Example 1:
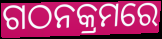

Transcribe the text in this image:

ଗଠନକ୍ରମରେ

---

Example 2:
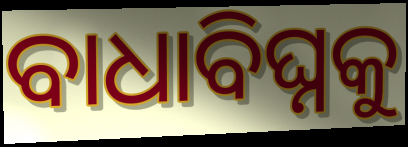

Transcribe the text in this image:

ବାଧାବିଘ୍ନକୁ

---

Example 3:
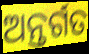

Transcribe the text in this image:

ଅନ୍ତର୍ଗତ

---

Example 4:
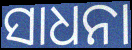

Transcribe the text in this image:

ସାଧନା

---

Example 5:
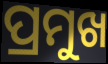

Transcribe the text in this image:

ପ୍ରମୁଖ